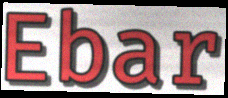
Ebar